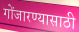
गोंजारण्यासाठी